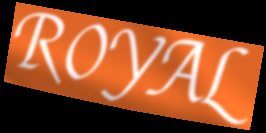
ROYAL